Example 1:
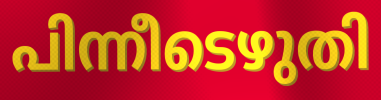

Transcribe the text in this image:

പിന്നീടെഴുതി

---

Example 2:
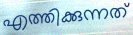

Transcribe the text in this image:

എത്തിക്കുന്നത്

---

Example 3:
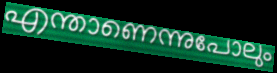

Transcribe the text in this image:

എന്താണെന്നുപോലും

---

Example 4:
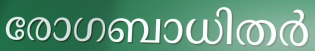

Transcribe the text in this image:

രോഗബാധിതർ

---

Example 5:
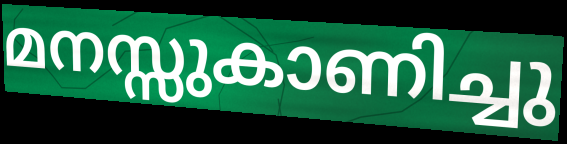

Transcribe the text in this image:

മനസ്സുകാണിച്ചു